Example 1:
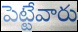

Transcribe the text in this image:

పెట్టేవారు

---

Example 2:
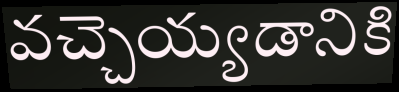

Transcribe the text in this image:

వచ్చెయ్యడానికి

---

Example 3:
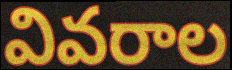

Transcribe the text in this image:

వివరాల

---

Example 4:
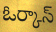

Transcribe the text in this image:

ఓర్కాస్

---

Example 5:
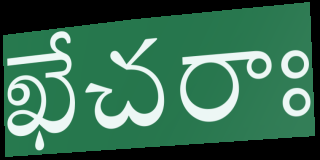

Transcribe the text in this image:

ఖేచరాః